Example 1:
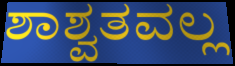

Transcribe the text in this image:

ಶಾಶ್ವತವಲ್ಲ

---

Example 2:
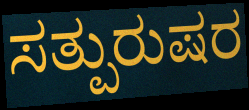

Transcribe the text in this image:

ಸತ್ಪುರುಷರ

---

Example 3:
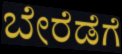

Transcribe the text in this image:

ಬೇರೆಡೆಗೆ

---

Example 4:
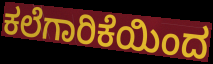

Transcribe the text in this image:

ಕಲೆಗಾರಿಕೆಯಿಂದ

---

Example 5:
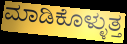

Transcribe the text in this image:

ಮಾಡಿಕೊಳ್ಳುತ್ತ